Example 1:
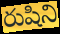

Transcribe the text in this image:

రుషిని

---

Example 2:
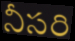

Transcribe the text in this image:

నీసరి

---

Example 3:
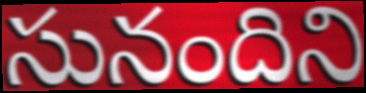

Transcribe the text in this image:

సునందిని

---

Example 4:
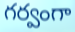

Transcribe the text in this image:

గర్వంగా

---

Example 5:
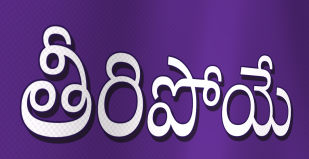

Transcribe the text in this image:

తీరిపోయే